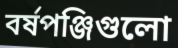
বর্ষপঞ্জিগুলো